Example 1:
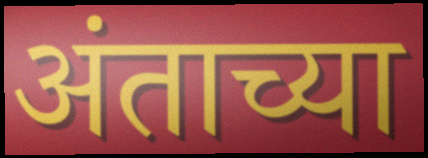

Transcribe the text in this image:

अंताच्या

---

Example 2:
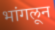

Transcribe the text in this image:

भांगलून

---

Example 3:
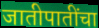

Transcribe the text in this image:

जातीपातींचा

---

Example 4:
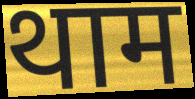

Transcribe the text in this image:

थाम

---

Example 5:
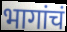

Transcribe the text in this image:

भागांचं